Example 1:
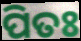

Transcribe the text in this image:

ପିତଃ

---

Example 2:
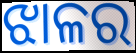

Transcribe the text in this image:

ଝାଳର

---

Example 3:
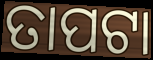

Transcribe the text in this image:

ତାପଟା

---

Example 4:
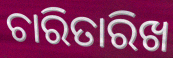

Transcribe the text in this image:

ଚାରିତାରିଖ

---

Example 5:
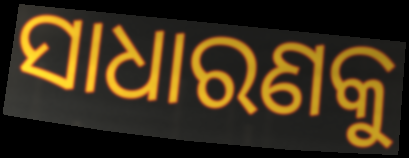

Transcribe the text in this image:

ସାଧାରଣକୁ